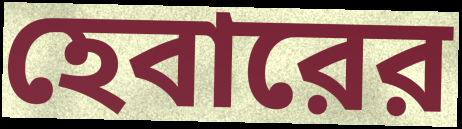
হেবারের